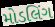
મોડલિંગ